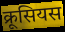
क्रूसियस